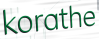
korathe